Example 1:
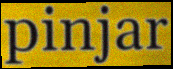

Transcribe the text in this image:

pinjar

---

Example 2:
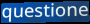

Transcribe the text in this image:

questione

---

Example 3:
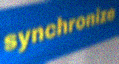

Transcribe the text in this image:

synchronize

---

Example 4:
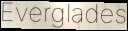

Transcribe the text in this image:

Everglades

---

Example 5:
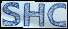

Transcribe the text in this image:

SHC